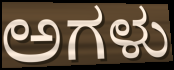
ಅಗಳು